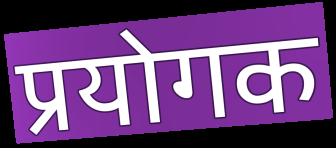
प्रयोगक